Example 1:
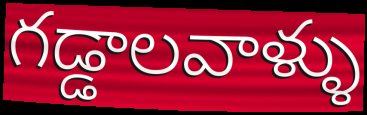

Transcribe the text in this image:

గడ్డాలవాళ్ళు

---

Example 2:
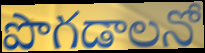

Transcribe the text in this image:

పొగడాలనో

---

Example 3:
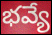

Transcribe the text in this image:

భవ్యే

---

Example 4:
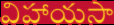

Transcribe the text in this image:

విహాయసా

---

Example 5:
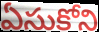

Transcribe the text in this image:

ఏసుకోని